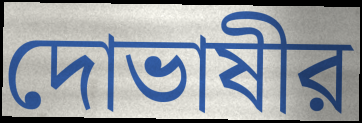
দোভাষীর